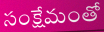
సంక్షేమంతో